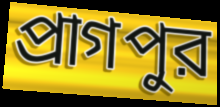
প্রাগপুর